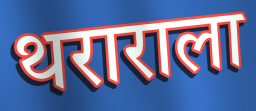
थराराला